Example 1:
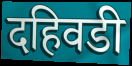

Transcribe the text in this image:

दहिवडी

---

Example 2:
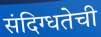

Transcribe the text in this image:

संदिग्धतेची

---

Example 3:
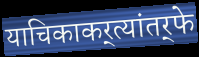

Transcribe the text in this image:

याचिकाकर्त्यांतर्फे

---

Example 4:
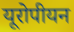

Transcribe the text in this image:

यूरोपीयन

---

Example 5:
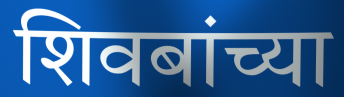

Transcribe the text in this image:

शिवबांच्या